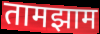
तामझाम